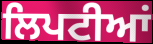
ਲਿਪਟੀਆਂ